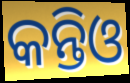
କନ୍ତିଓ